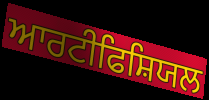
ਆਰਟੀਫਿਸ਼ਿਯਲ